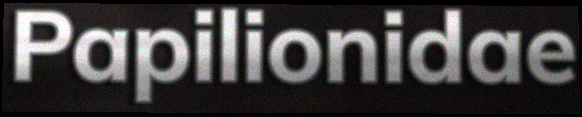
Papilionidae